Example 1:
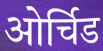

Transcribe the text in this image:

ओर्चिड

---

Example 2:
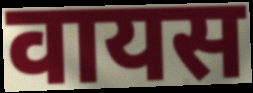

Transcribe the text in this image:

वायस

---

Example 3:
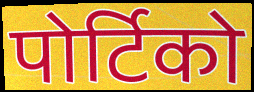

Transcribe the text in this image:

पोर्टिको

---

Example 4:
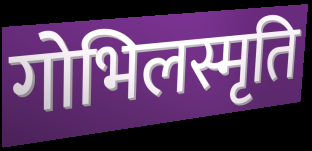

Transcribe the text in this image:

गोभिलस्मृति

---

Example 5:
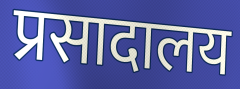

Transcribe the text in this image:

प्रसादालय